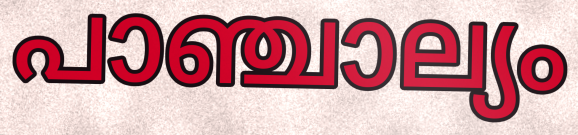
പാഞ്ചാല്യം